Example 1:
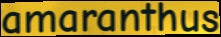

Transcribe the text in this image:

amaranthus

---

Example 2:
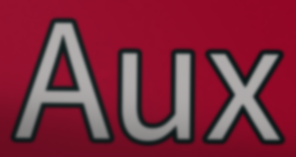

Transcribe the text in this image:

Aux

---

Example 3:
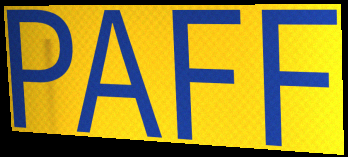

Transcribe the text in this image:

PAFF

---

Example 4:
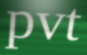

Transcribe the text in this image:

pvt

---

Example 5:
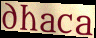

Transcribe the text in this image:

dhaca